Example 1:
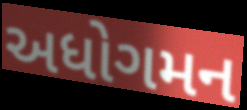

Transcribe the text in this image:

અધોગમન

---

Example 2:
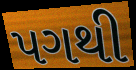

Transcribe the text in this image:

પગથી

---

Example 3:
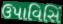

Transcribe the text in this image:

ઉપાવિસિં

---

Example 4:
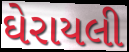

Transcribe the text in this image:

ઘેરાયલી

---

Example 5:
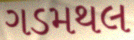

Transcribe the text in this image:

ગડમથલ